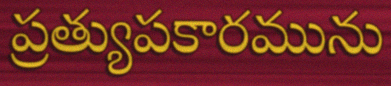
ప్రత్యుపకారమును